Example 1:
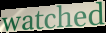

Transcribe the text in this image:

watched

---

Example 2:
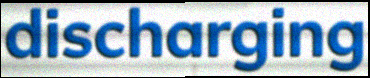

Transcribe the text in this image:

discharging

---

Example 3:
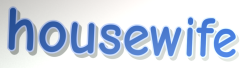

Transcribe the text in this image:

housewife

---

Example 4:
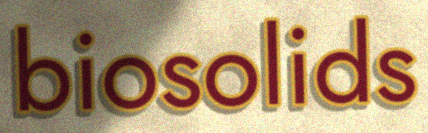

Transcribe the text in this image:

biosolids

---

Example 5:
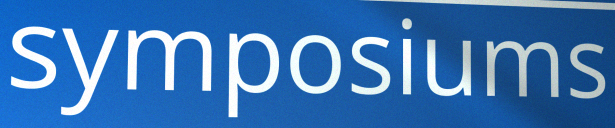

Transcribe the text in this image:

symposiums